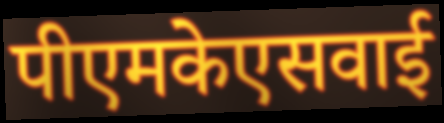
पीएमकेएसवाई